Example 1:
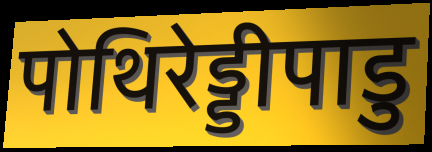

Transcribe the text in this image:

पोथिरेड्डीपाडु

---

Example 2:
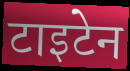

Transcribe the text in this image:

टाइटेन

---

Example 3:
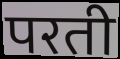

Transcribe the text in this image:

परती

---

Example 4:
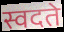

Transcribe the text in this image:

स्वदते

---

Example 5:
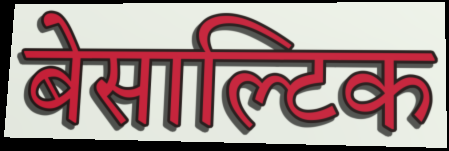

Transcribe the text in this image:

बेसाल्टिक